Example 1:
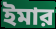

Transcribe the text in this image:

ইমার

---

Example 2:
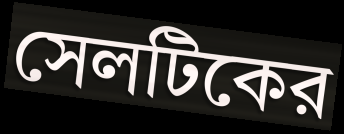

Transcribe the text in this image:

সেলটিকের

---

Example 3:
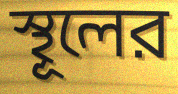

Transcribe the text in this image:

স্থূলের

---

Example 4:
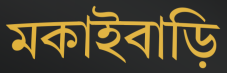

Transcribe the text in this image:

মকাইবাড়ি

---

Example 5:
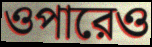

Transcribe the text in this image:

ওপারেও